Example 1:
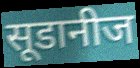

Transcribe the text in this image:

सूडानीज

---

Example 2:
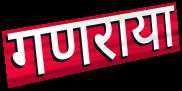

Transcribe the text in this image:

गणराया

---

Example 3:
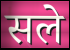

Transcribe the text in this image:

सले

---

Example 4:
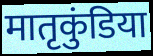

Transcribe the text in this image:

मातृकुंडिया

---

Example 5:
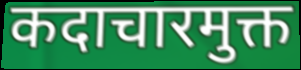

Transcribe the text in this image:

कदाचारमुक्त